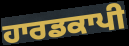
ਹਾਰਡਕਾਪੀ